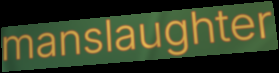
manslaughter